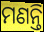
ମଣନ୍ତି